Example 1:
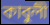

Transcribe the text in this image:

কাবুলী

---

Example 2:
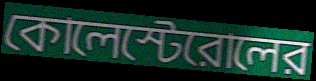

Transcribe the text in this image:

কোলেস্টেরোলের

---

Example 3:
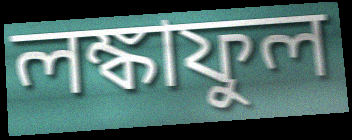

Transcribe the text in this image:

লঙ্কাফুল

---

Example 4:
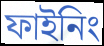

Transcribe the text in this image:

ফাইনিং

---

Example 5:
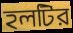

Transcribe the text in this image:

হলটির